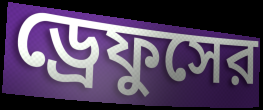
ড্রেফুসের